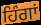
ਹਿੰਗਾਂ